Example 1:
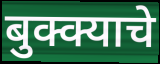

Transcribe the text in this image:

बुक्क्याचे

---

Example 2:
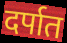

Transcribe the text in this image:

दर्पात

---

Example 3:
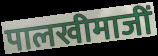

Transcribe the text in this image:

पालखीमाजीं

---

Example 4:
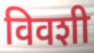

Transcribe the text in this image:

विवशी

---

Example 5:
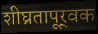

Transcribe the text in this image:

शीघ्रतापूर्वक